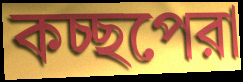
কচ্ছপেরা